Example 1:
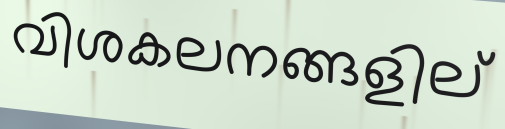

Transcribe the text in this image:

വിശകലനങ്ങളില്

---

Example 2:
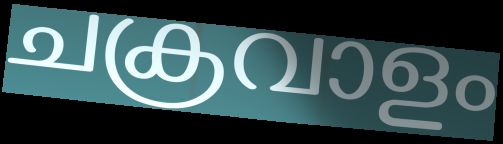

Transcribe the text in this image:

ചക്രവാളം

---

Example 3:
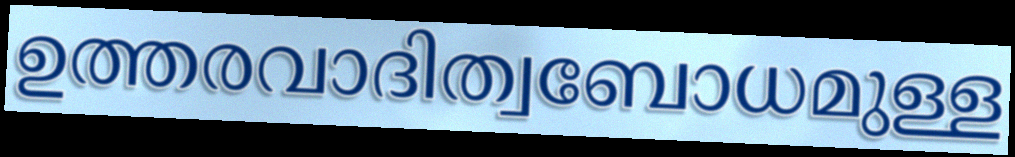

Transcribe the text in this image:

ഉത്തരവാദിത്വബോധമുള്ള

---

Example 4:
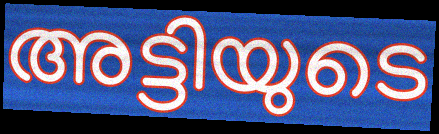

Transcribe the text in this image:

അട്ടിയുടെ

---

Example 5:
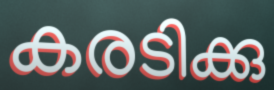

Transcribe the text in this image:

കരടിക്കു